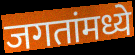
जगतांमध्ये